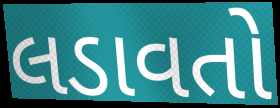
લડાવતો